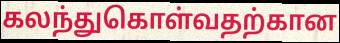
கலந்துகொள்வதற்கான